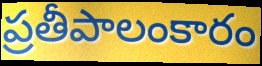
ప్రతీపాలంకారం